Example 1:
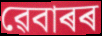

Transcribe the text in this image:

ৱেবাৰৰ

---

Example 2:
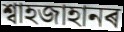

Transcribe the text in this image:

শ্বাহজাহানৰ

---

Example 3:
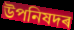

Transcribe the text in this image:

উপনিষদৰ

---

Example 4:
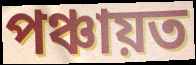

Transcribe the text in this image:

পঞ্চায়ত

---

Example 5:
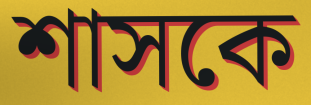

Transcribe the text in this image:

শাসকে